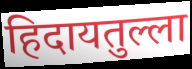
हिदायतुल्ला